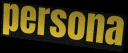
persona